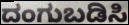
ದಂಗುಬಡಿಸಿ